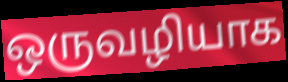
ஒருவழியாக